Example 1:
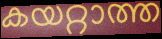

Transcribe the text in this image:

കയറ്റാത്ത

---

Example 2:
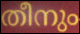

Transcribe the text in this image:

തീനും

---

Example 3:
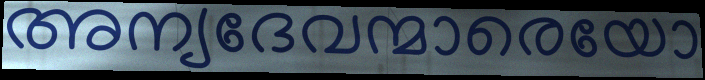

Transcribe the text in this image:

അന്യദേവന്മാരെയോ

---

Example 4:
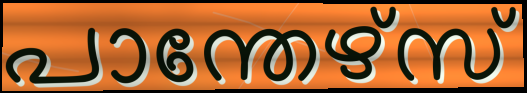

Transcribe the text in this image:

പാന്തേഴ്സ്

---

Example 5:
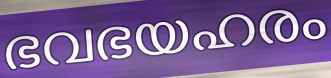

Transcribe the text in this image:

ഭവഭയഹരം